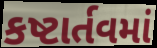
કષ્ટાર્તવમાં